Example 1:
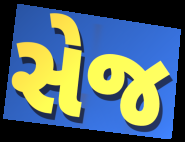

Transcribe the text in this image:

સેજ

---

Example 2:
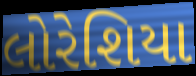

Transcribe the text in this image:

લોરેશિયા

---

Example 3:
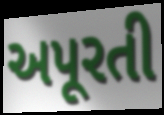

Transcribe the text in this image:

અપૂરતી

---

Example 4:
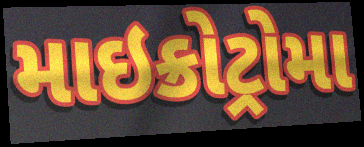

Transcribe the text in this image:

માઇક્રોટ્રોમા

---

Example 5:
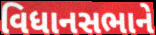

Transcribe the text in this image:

વિધાનસભાને